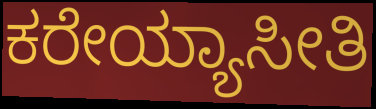
ಕರೇಯ್ಯಾಸೀತಿ